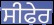
ਸੀਫੇਰ